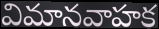
విమానవాహక